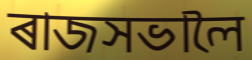
ৰাজসভালৈ